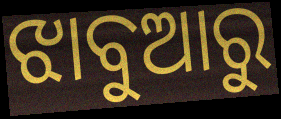
ଝାବୁଆରୁ